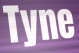
Tyne